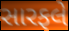
સારફલે